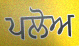
ਪਲੋਅ